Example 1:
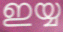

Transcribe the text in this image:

ഇയ്യ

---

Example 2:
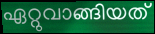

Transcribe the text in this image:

ഏറ്റുവാങ്ങിയത്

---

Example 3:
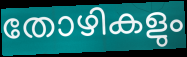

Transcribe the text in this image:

തോഴികളും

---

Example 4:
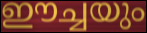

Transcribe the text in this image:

ഈച്ചയും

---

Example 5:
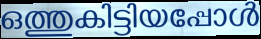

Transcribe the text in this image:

ഒത്തുകിട്ടിയപ്പോൾ